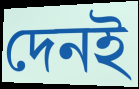
দেনই